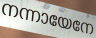
നന്നായേനേ